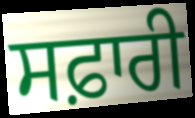
ਸਫ਼ਾਰੀ